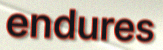
endures